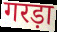
गरड़ा